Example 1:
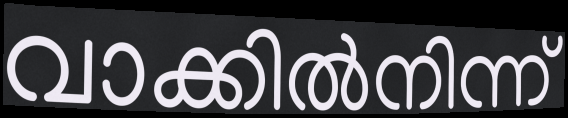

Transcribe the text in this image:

വാക്കിൽനിന്ന്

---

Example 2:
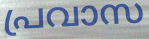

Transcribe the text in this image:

പ്രവാസ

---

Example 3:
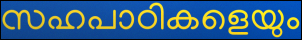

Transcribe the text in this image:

സഹപാഠികളെയും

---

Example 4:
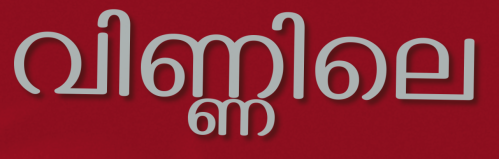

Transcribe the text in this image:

വിണ്ണിലെ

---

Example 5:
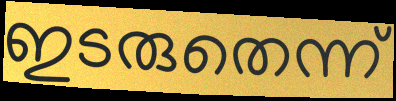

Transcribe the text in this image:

ഇടരുതെന്ന്